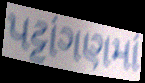
પટ્ટાંગણમાં